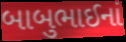
બાબુભાઈનાં